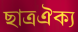
ছাত্রঐক্য